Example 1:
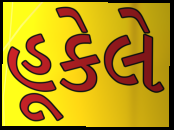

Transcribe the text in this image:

હૂકેલે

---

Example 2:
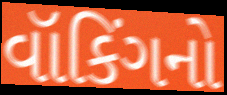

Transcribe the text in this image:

વૉકિંગનો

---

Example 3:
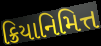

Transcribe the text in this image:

ક્રિયાનિમિત્ત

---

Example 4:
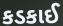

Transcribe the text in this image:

કડકાઈ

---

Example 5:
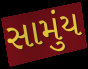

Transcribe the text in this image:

સામુંય